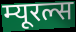
म्यूरल्स